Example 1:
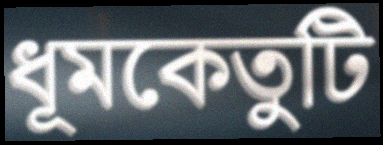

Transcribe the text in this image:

ধূমকেতুটি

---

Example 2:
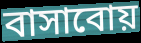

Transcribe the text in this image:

বাসাবোয়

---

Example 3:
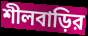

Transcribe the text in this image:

শীলবাড়ির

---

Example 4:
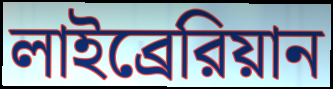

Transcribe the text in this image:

লাইব্রেরিয়ান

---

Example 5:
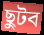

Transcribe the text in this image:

ছুটব